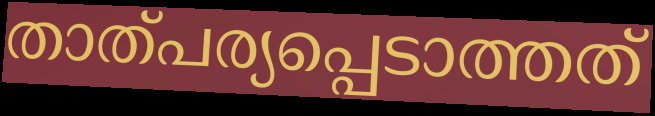
താത്പര്യപ്പെടാത്തത്